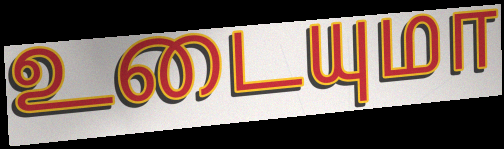
உடையுமா